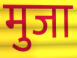
मुजा